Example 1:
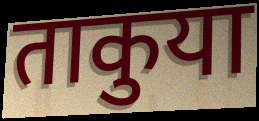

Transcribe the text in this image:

ताकुया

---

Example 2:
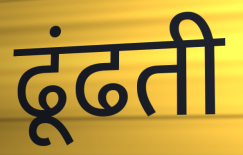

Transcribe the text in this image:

ढूंढती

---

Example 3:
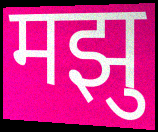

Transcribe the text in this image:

मझु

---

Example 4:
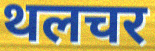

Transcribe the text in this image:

थलचर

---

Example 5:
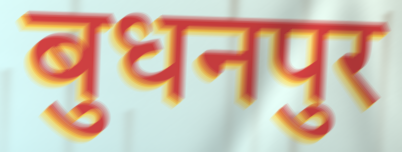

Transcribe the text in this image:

बुधनपुर